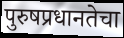
पुरुषप्रधानतेचा